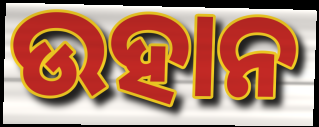
ଉହାନ